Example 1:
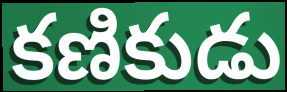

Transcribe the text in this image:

కణికుడు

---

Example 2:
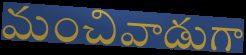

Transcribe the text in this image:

మంచివాడుగా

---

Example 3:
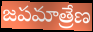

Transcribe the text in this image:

జపమాత్రేణ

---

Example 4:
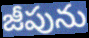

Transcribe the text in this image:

జీపును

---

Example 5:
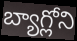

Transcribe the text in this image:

బ్యాగ్లోని